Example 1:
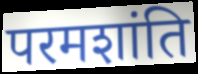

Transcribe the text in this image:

परमशांति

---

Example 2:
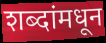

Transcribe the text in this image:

शब्दांमधून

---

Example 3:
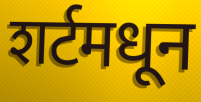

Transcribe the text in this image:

शर्टमधून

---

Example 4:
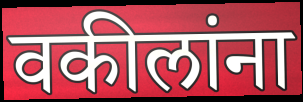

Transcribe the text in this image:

वकीलांना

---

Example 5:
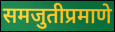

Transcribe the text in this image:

समजुतीप्रमाणे